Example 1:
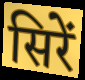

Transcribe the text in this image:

सिरें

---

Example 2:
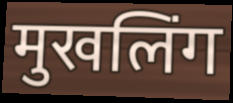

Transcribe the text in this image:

मुखलिंग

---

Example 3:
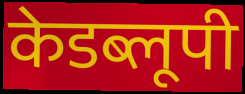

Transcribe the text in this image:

केडब्लूपी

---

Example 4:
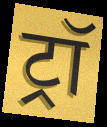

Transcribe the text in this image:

ट्रॉ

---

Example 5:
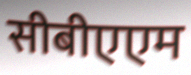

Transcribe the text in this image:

सीबीएएम